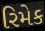
રિમેક